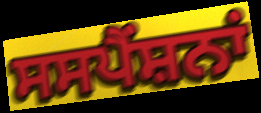
ਸਸਪੈਂਸ਼ਨਾਂ